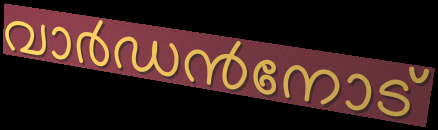
വാർഡൻനോട്